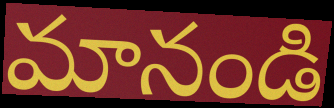
మానండి